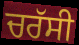
ਚਰੱਸੀ